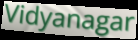
Vidyanagar